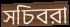
সচিবরা